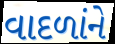
વાદળાંને